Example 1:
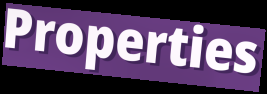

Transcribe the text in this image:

Properties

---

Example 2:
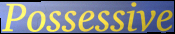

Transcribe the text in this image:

Possessive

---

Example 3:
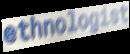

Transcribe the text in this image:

ethnologist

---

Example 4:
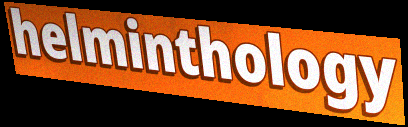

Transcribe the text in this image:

helminthology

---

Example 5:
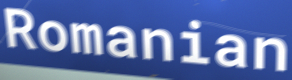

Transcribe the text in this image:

Romanian